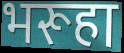
भरूहा